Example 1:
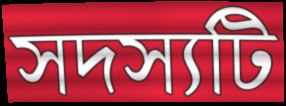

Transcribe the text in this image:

সদস্যটি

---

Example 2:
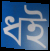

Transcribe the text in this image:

ধই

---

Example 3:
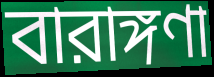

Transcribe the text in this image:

বারাঙ্গণা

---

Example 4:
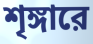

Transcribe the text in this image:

শৃঙ্গারে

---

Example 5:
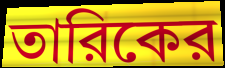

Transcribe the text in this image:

তারিকের